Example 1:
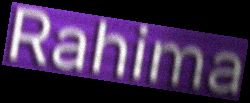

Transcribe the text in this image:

Rahima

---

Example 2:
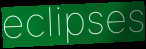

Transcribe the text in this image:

eclipses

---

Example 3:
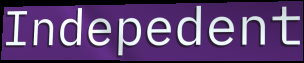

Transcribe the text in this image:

Indepedent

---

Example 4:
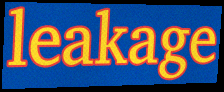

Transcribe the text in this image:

leakage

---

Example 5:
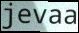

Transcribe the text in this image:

jevaa